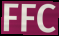
FFC